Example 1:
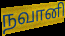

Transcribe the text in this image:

நவானி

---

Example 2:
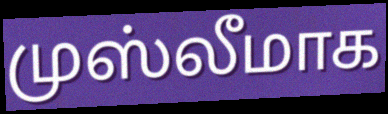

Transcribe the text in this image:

முஸ்லீமாக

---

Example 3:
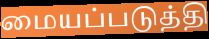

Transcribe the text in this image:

மையப்படுத்தி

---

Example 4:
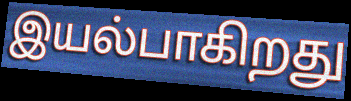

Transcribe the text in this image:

இயல்பாகிறது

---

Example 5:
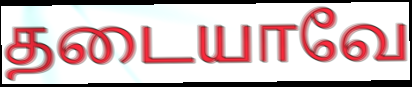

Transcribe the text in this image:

தடையாவே